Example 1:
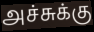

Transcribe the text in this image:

அச்சுக்கு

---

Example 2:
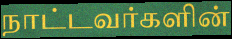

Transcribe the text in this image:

நாட்டவர்களின்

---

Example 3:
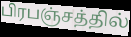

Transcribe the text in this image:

பிரபஞ்சத்தில்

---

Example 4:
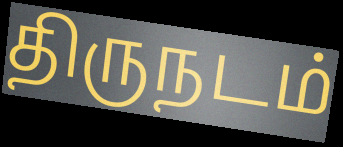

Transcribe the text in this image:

திருநடம்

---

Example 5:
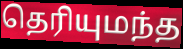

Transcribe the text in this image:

தெரியுமந்த